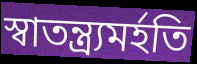
স্বাতন্ত্র্যমর্হতি